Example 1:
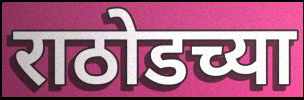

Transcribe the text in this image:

राठोडच्या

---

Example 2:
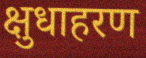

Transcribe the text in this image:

क्षुधाहरण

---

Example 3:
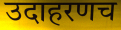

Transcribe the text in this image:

उदाहरणच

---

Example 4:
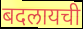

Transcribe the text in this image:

बदलायची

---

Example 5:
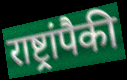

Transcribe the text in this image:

राष्ट्रांपैकी